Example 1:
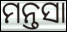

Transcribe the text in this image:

ମନ୍ତସା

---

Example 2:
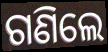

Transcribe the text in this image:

ଗଣିଲେ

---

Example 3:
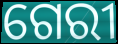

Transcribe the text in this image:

ଗେରୀ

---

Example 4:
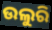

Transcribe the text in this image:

ଉଲୁରି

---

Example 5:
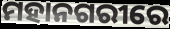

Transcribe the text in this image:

ମହାନଗରୀରେ